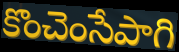
కొంచెంసేపాగి